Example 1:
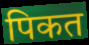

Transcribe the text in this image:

पिकत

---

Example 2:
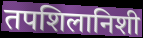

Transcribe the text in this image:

तपशिलानिशी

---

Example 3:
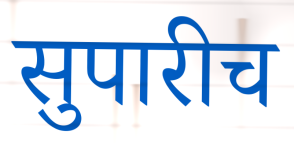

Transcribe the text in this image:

सुपारीच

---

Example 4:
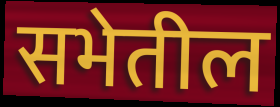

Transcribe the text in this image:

सभेतील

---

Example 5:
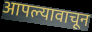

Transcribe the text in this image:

आपल्यावाचून